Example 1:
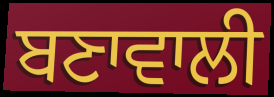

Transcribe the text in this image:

ਬਣਾਵਾਲੀ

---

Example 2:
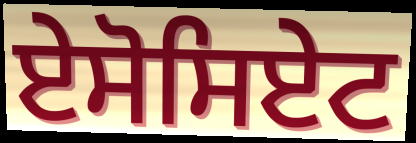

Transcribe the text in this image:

ਏਸੋਸਿਏਟ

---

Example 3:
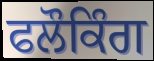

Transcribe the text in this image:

ਫਲੌਕਿੰਗ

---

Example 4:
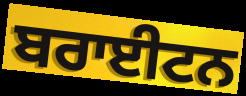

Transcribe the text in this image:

ਬਰਾਈਟਨ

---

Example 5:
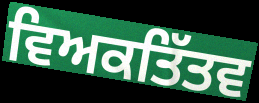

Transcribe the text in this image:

ਵਿਅਕਤਿੱਤਵ